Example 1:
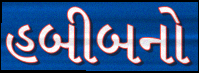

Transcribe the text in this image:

હબીબનો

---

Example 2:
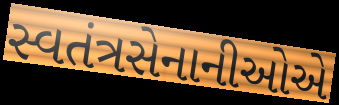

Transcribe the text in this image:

સ્વતંત્રસેનાનીઓએ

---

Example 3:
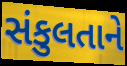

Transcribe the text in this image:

સંકુલતાને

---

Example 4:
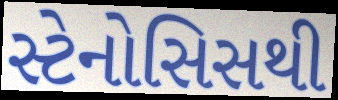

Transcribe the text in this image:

સ્ટેનોસિસથી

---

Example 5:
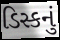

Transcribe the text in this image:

ડિસ્કનું